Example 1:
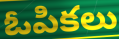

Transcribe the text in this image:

ఓపికలు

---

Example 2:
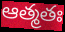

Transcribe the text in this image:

ఆత్మతః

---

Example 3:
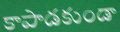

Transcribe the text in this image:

కాపాడకుండా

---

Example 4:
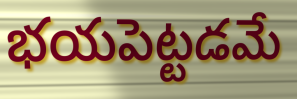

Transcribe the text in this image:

భయపెట్టడమే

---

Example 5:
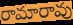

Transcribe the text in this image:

రామారావు